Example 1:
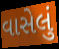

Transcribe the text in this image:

વાસેલું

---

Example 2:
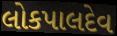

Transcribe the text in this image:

લોકપાલદેવ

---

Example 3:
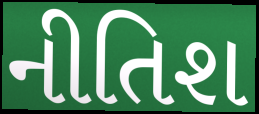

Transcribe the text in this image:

નીતિશ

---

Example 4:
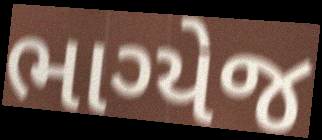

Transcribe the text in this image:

ભાગ્યેજ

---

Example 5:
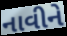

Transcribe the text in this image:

નાવીને